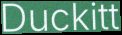
Duckitt